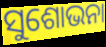
ସୁଶୋଭନା